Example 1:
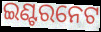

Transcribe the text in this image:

ଇଣ୍ଟରନେଟ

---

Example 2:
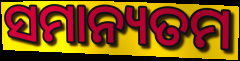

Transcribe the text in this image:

ସମାନ୍ୟତମ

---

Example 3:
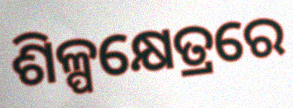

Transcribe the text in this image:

ଶିଳ୍ପକ୍ଷେତ୍ରରେ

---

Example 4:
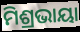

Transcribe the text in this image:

ମିଶ୍ରଭାୟା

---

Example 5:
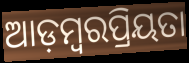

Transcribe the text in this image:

ଆଡ଼ମ୍ବରପ୍ରିୟତା